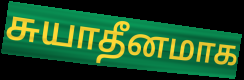
சுயாதீனமாக